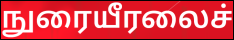
நுரையீரலைச்